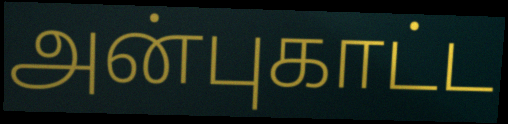
அன்புகாட்ட